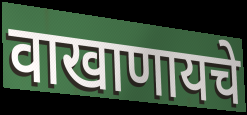
वाखाणायचे